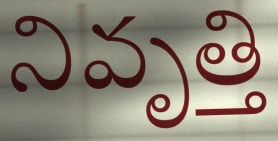
నివృత్తి